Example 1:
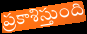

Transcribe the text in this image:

ప్రకాశిస్తుంది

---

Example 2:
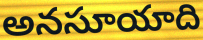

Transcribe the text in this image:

అనసూయాది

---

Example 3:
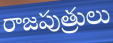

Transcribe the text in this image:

రాజపుత్రులు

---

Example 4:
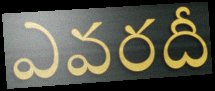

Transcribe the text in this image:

ఎవరదీ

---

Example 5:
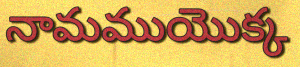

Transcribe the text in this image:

నామముయొక్క